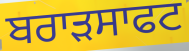
ਬਰਾੜਸਾਫਟ